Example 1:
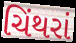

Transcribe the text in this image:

ચિંથરાં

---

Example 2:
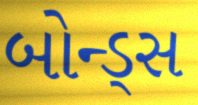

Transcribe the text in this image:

બોન્ડ્સ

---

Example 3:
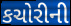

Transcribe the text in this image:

કચોરીની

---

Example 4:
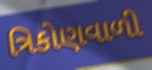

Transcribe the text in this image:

ત્રિકોણવાળી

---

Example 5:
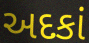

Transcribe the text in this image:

અદકાં